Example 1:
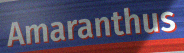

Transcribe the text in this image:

Amaranthus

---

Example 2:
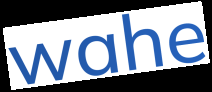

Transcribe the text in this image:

wahe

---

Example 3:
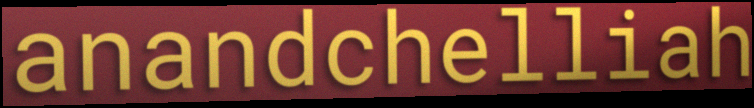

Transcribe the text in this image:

anandchelliah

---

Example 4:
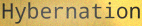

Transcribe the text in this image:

Hybernation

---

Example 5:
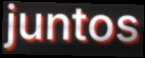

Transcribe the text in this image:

juntos